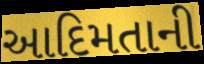
આદિમતાની